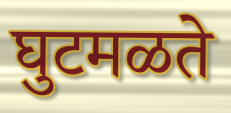
घुटमळते